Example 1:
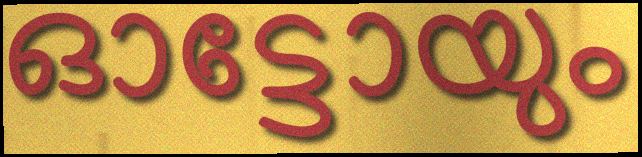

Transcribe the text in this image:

ഓട്ടോയും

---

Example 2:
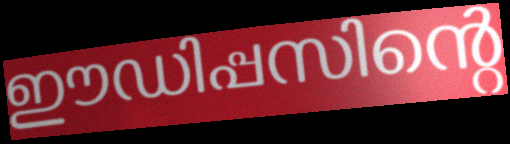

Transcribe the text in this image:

ഈഡിപ്പസിന്റെ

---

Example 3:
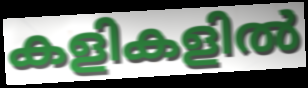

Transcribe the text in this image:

കളികളിൽ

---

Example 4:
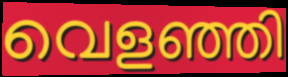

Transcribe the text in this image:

വെളഞ്ഞി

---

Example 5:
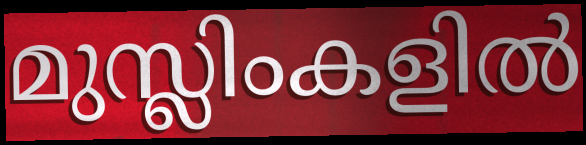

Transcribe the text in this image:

മുസ്ലിംകളിൽ